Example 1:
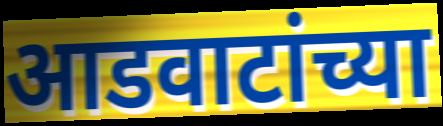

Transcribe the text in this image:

आडवाटांच्या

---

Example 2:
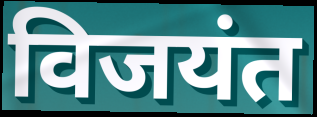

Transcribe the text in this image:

विजयंत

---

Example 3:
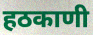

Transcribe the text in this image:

हठकाणी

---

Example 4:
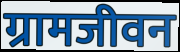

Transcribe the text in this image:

ग्रामजीवन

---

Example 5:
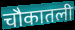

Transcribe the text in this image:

चौकातली